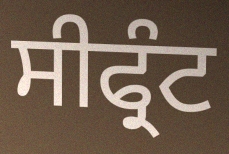
ਸੀਫ੍ਰੰਟ